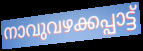
നാവുവഴക്കപ്പാട്ട്